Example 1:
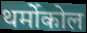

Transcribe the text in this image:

थर्मोकोल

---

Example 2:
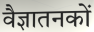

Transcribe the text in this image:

वैज्ञातनकों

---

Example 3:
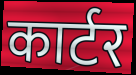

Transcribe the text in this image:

कार्टर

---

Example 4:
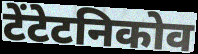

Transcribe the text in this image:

टेंटेटनिकोव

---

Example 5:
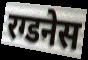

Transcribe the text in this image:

रग्डनेस